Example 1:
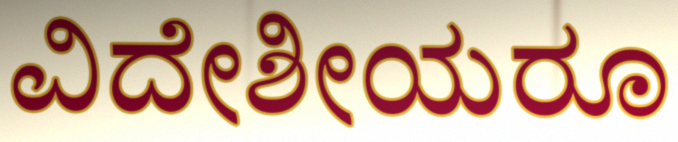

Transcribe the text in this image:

ವಿದೇಶೀಯರೂ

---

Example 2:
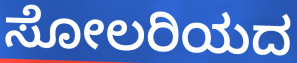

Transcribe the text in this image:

ಸೋಲರಿಯದ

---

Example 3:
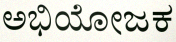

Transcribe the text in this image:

ಅಭಿಯೋಜಕ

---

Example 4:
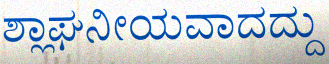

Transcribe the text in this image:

ಶ್ಲಾಘನೀಯವಾದದ್ದು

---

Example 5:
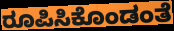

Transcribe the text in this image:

ರೂಪಿಸಿಕೊಂಡಂತೆ